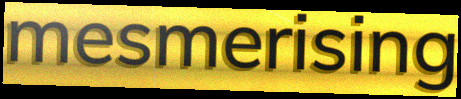
mesmerising